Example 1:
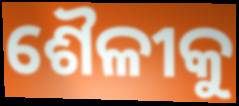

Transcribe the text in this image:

ଶୈଳୀକୁ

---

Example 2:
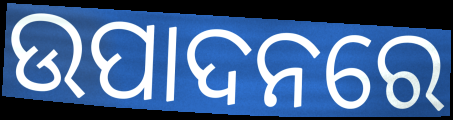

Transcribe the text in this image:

ଉପାଦନରେ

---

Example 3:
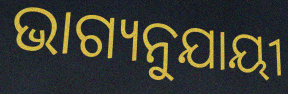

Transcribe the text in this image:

ଭାଗ୍ୟନୁଯାୟୀ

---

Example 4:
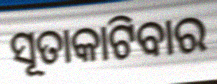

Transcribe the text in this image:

ସୂତାକାଟିବାର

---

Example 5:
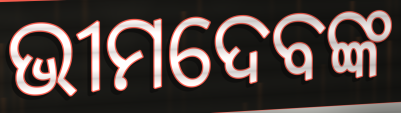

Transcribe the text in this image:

ଭୀମଦେବଙ୍କ